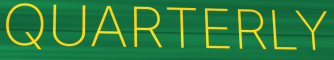
QUARTERLY